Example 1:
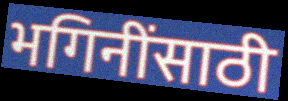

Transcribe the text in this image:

भगिनींसाठी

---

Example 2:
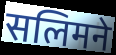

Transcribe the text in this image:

सलिमने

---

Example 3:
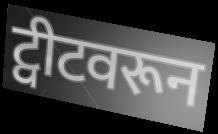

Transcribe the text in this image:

ट्वीटवरून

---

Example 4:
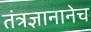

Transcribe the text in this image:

तंत्रज्ञानानेच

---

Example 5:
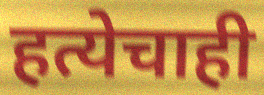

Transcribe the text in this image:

हत्येचाही